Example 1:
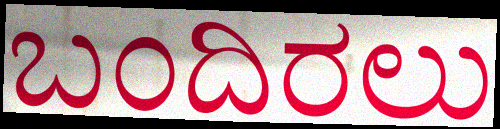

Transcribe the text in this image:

ಬಂದಿರಲು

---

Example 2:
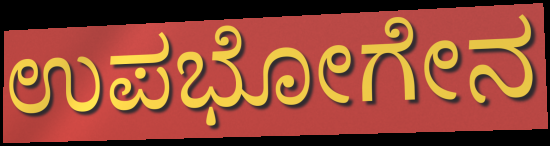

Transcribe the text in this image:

ಉಪಭೋಗೇನ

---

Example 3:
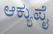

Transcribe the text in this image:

ಆಕ್ಯುಪೈ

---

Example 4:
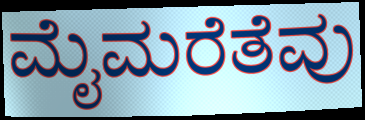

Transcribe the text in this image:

ಮೈಮರೆತೆವು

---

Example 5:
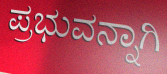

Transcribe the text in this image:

ಪ್ರಭುವನ್ನಾಗಿ